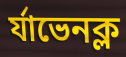
র্যাভেনক্ল